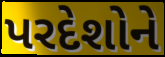
પરદેશોને